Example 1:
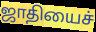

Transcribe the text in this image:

ஜாதியைச்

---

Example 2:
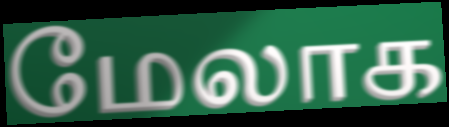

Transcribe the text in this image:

மேலாக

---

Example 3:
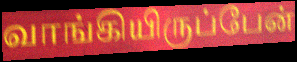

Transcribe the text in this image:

வாங்கியிருப்பேன்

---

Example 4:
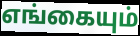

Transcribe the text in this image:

எங்கையும்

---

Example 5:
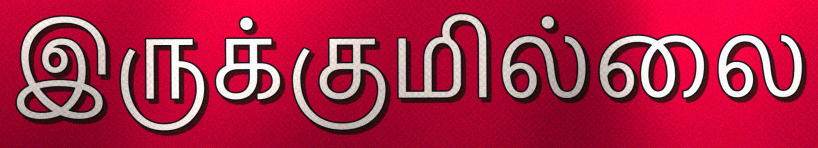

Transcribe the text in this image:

இருக்குமில்லை